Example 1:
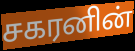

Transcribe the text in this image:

சகரனின்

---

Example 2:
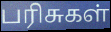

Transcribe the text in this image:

பரிசுகள்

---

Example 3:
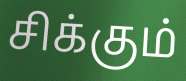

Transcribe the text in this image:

சிக்கும்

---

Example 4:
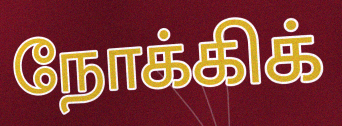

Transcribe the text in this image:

நோக்கிக்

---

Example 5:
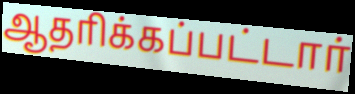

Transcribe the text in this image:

ஆதரிக்கப்பட்டார்